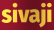
sivaji